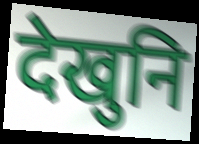
देखुनि